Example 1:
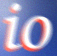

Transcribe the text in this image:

io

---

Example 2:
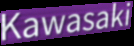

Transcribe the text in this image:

Kawasaki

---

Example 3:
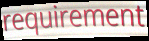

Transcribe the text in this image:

requirement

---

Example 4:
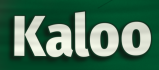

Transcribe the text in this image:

Kaloo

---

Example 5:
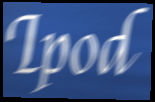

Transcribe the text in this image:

Ipod